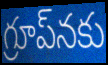
గ్రూప్‌నకు